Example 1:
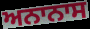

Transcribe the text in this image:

ਅਨਾਨਾਸ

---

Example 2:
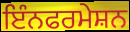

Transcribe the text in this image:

ਇੰਨਫਰਮੇਸ਼ਨ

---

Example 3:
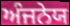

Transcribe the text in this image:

ਅੰਜਨੇਯ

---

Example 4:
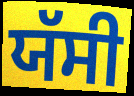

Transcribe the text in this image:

ਯੱਸੀ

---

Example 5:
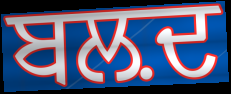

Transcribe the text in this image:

ਬਲ਼ਦ